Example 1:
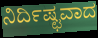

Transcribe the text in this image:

ನಿರ್ದಿಷ್ಟವಾದ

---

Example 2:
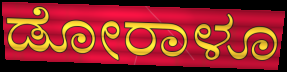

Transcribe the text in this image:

ಡೋರಾಳೂ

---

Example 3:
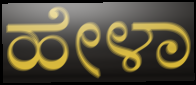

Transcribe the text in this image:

ಹೇಳಾ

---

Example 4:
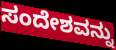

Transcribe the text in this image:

ಸಂದೇಶವನ್ನು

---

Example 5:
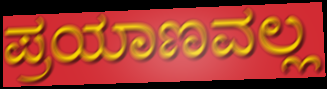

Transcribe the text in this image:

ಪ್ರಯಾಣವಲ್ಲ